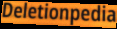
Deletionpedia